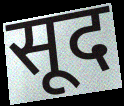
सूद